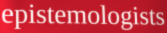
epistemologists